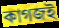
কাগজই